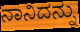
ನಾನಿದನ್ನು